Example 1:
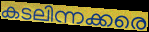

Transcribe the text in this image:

കടലിന്നക്കരെ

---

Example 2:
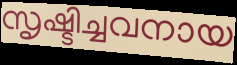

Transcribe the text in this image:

സൃഷ്ടിച്ചവനായ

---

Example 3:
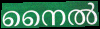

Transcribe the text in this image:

നൈൽ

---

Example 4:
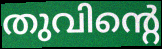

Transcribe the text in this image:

തുവിന്റെ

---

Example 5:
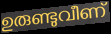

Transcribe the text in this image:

ഉരുണ്ടുവീണ്